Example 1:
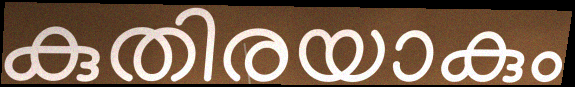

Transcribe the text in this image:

കുതിരയാകും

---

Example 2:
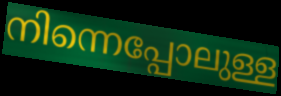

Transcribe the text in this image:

നിന്നെപ്പോലുള്ള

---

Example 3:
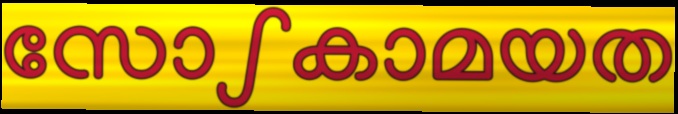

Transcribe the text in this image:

സോഽകാമയത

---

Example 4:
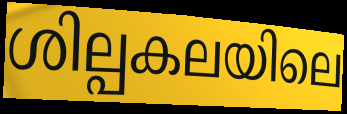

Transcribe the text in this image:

ശില്പകലയിലെ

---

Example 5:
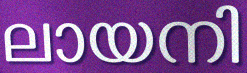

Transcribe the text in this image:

ലായനി